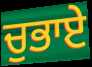
ਚੁਭਾਏ